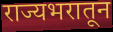
राज्यभरातून